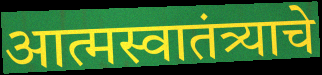
आत्मस्वातंत्र्याचे